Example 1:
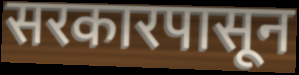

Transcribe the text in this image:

सरकारपासून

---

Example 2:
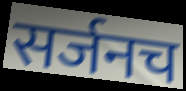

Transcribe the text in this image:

सर्जनच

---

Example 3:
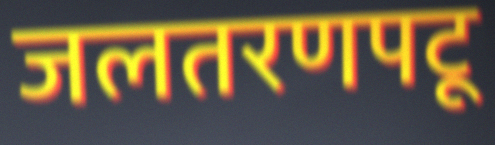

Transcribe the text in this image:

जलतरणपटू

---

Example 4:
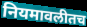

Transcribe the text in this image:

नियमावलीतच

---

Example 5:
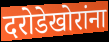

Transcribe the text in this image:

दरोडेखोरांना